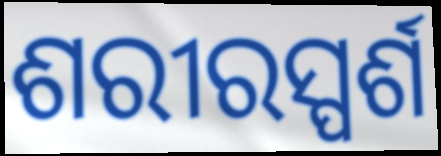
ଶରୀରସ୍ପର୍ଶ